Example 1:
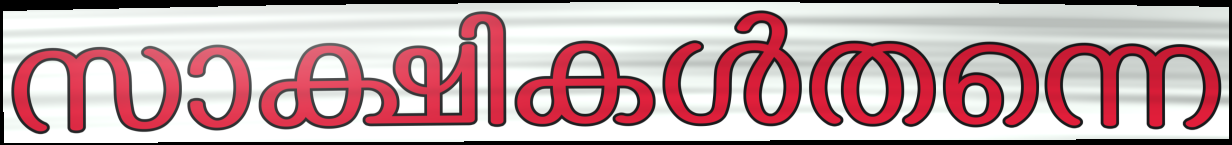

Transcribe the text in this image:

സാക്ഷികൾതന്നെ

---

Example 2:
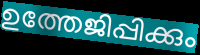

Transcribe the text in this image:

ഉത്തേജിപ്പിക്കും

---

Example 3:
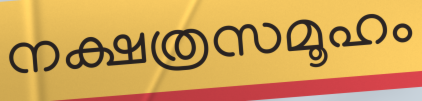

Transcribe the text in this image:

നക്ഷത്രസമൂഹം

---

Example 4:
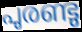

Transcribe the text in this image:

പുരണ്ടു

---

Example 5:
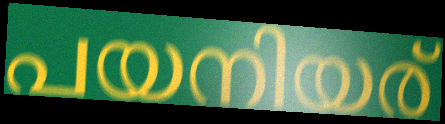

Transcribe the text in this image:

പയനിയര്